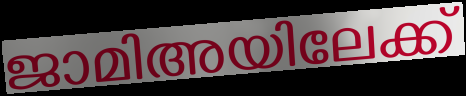
ജാമിഅയിലേക്ക്